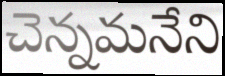
చెన్నమనేని